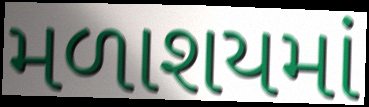
મળાશયમાં